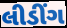
લીડીંગ